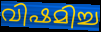
വിഷമിച്ച